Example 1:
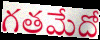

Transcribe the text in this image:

గతమేదో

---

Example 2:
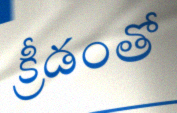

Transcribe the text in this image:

క్రీడంతో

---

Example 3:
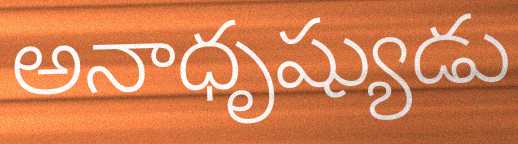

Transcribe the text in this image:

అనాధృష్యుడు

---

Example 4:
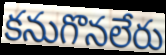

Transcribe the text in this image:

కనుగొనలేరు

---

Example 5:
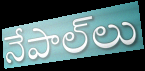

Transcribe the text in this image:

నేపాల్‌లు